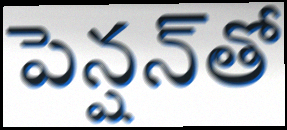
పెన్షన్‌తో